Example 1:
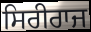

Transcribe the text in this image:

ਸਿਰੀਰਾਜ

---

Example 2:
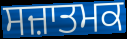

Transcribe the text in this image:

ਸਜ਼ਾਤਮਕ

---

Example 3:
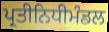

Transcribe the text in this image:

ਪ੍ਰਤੀਨਿਧੀਮੰਡਲ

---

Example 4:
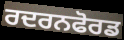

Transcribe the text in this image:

ਰਦਰਨਫੋਰਡ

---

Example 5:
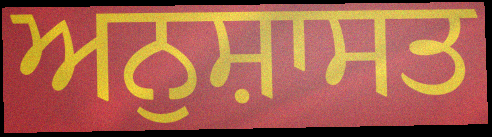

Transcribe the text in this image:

ਅਨੁਸ਼ਾਸਤ